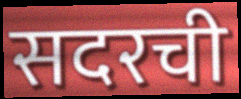
सदरची